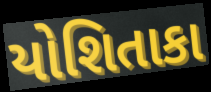
યોશિતાકા